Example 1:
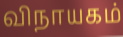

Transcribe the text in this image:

விநாயகம்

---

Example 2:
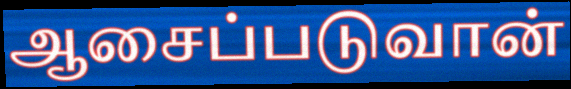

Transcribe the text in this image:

ஆசைப்படுவான்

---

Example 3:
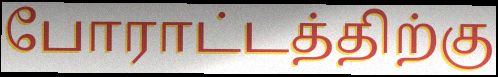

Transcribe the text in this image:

போராட்டத்திற்கு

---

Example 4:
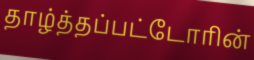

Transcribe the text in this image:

தாழ்த்தப்பட்டோரின்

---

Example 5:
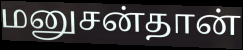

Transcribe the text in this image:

மனுசன்தான்